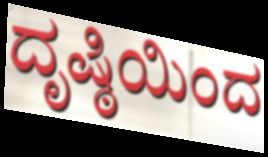
ದೃಷ್ಠಿಯಿಂದ